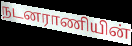
நடனராணியின்